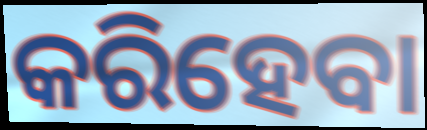
କରିହେବା